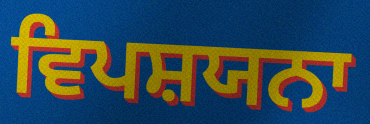
ਵਿਪਸ਼ਯਨਾ